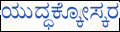
ಯುದ್ಧಕ್ಕೋಸ್ಕರ